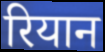
रियान